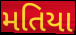
મતિયા